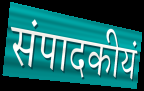
संपादकीयं